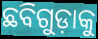
ଛବିଗୁଡ଼ାକୁ